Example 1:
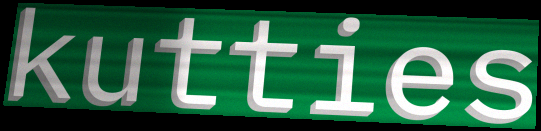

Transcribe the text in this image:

kutties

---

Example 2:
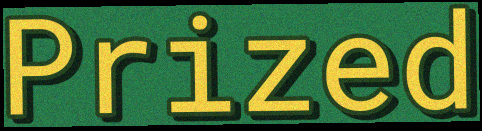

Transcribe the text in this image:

Prized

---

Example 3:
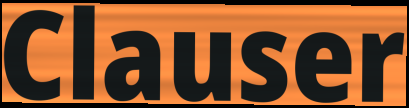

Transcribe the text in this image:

Clauser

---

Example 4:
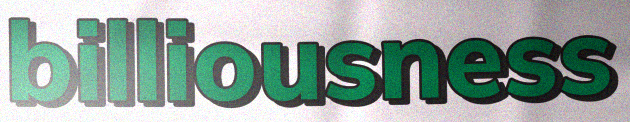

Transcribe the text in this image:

billiousness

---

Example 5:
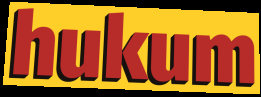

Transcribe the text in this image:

hukum